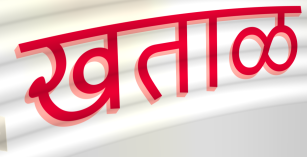
खताळ